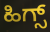
ಹಿಗ್ಸ್